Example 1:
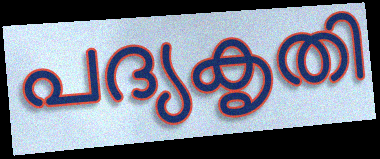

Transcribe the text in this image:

പദ്യകൃതി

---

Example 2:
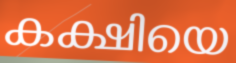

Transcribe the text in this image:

കക്ഷിയെ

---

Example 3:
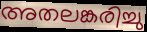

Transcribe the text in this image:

അതലങ്കരിച്ചു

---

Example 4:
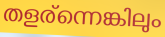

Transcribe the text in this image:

തളര്ന്നെങ്കിലും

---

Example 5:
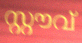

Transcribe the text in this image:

സ്റ്റൗവ്